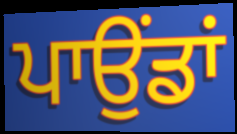
ਪਾਉਂਡਾਂ